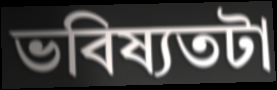
ভবিষ্যতটা